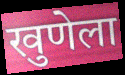
खुणेला